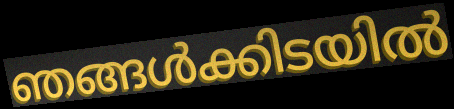
ഞങ്ങൾക്കിടയിൽ